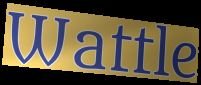
Wattle